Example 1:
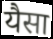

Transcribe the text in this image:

यैसा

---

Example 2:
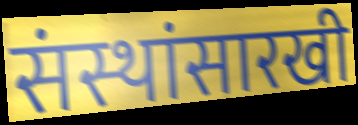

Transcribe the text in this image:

संस्थांसारखी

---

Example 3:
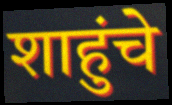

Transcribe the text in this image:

शाहुंचे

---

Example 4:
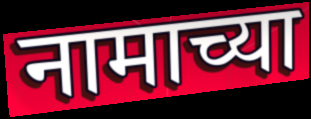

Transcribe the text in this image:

नामाच्या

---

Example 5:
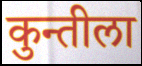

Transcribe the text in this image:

कुन्तीला